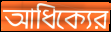
আধিক্যের